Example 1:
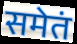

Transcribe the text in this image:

समेतं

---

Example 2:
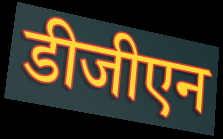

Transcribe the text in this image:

डीजीएन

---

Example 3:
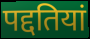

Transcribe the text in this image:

पद्दतियां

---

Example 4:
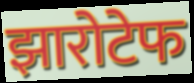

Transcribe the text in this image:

झारोटेफ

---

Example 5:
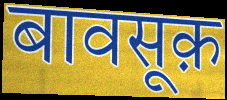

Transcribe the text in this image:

बावसूक़